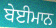
ਬੇਈਮਾਨ